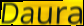
Daura